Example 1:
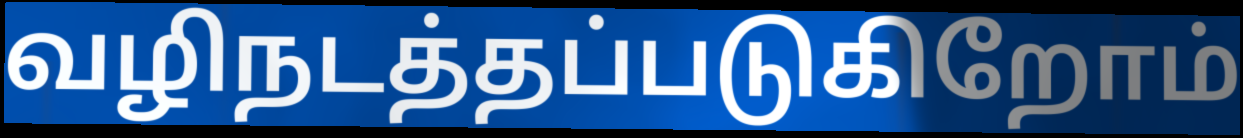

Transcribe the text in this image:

வழிநடத்தப்படுகிறோம்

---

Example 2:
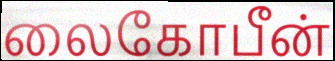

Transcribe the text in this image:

லைகோபீன்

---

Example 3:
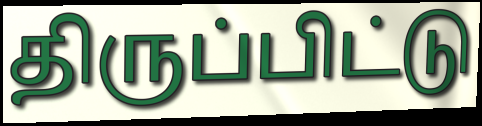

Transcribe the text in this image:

திருப்பிட்டு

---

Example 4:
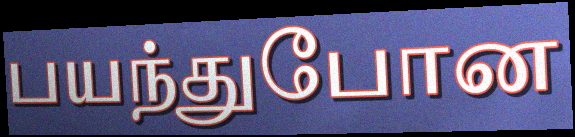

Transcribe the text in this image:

பயந்துபோன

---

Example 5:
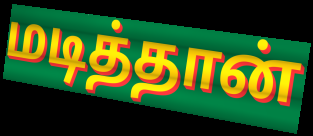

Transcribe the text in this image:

மடித்தான்